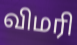
விமரி